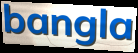
bangla